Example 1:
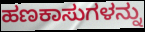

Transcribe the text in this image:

ಹಣಕಾಸುಗಳನ್ನು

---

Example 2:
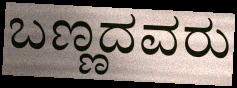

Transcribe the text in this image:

ಬಣ್ಣದವರು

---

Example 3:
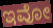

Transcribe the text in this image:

ಇವೋ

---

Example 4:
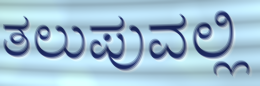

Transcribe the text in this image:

ತಲುಪುವಲ್ಲಿ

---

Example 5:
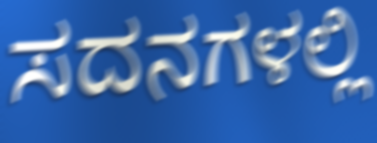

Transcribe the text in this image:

ಸದನಗಳಲ್ಲಿ